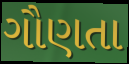
ગૌણતા